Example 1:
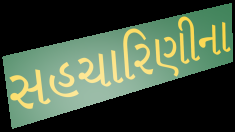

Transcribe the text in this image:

સહચારિણીના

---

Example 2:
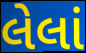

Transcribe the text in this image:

લેલાં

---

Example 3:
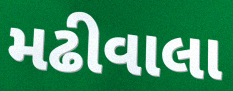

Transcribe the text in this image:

મઢીવાલા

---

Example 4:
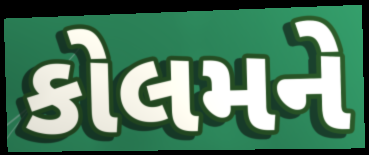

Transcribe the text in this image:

કોલમને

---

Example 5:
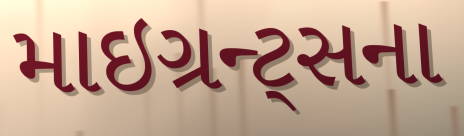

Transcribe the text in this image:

માઇગ્રન્ટ્સના